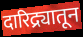
दारिद्र्यातून